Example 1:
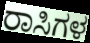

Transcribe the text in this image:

ರಾಸಿಗಳ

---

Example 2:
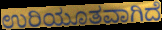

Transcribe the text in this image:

ಉರಿಯೂತವಾಗಿದೆ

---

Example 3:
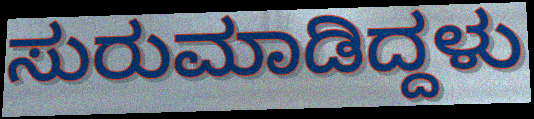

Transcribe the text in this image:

ಸುರುಮಾಡಿದ್ದಳು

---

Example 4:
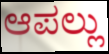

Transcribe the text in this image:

ಆಪಲ್ಲು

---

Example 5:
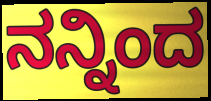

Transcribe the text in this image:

ನನ್ನಿಂದ